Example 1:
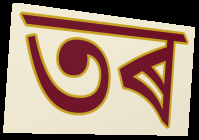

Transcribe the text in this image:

তৰ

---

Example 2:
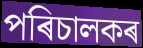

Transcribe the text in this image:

পৰিচালকৰ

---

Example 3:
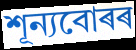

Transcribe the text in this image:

শূন্যবোৰৰ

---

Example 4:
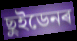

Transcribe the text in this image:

ছুইডেনৰ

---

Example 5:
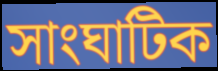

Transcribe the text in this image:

সাংঘাটিক